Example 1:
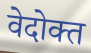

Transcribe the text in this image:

वेदोक्त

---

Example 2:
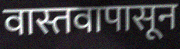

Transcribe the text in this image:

वास्तवापासून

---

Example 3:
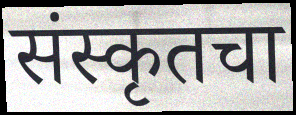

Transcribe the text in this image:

संस्कृतचा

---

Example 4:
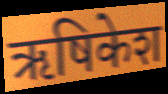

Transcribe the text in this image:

ऋषिकेश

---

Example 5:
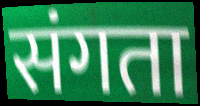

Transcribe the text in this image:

संगता